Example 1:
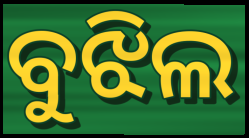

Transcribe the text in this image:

ବୁଝିଲ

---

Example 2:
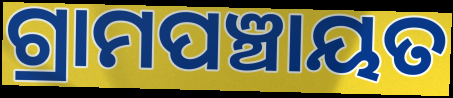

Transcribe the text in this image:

ଗ୍ରାମପଞ୍ଚାୟତ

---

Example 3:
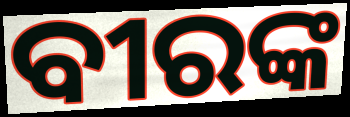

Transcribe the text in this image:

ବୀରଙ୍କ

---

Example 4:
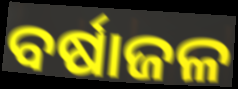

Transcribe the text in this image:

ବର୍ଷାଜଳ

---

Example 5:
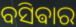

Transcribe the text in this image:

ବସିଵାର